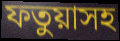
ফতুয়াসহ